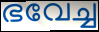
ഭവേച്ച